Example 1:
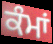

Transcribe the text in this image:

ਕੰਮਾਂ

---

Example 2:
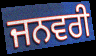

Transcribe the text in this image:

ਜਨਵਰੀ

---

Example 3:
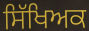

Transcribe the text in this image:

ਸਿੱਖਿਅਕ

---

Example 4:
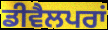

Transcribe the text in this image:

ਡੀਵੈਲਪਰਾਂ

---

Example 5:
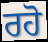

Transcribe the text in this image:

ਰਹੋ